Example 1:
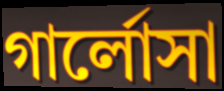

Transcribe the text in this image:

গার্লোসা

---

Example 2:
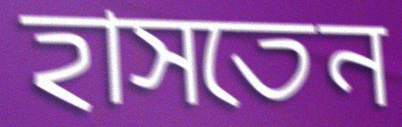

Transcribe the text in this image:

হাসতেন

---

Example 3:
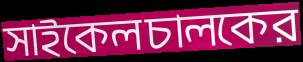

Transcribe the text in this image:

সাইকেলচালকের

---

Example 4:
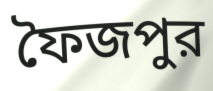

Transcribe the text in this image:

ফৈজপুর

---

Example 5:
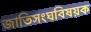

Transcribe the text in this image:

জাতিসংঘবিষয়ক